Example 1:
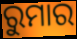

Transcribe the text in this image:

ରୁମାର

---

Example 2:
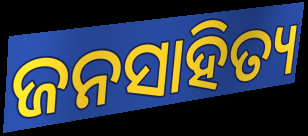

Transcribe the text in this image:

ଜନସାହିତ୍ୟ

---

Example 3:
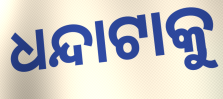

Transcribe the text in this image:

ଧନ୍ଦାଟାକୁ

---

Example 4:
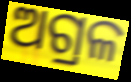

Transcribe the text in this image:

ଅଗ୍ରଳ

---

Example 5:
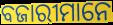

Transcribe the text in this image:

ବଜାରୀମାନେ